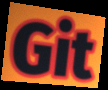
Git